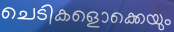
ചെടികളൊക്കെയും